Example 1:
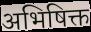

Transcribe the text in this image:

अभिषिक्त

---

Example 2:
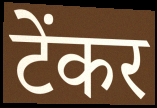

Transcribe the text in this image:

टेंकर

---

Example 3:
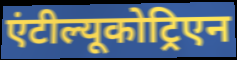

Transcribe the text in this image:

एंटील्यूकोट्रिएन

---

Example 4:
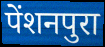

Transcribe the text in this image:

पेंशनपुरा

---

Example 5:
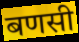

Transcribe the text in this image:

बणसी